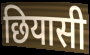
छियासी